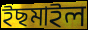
ইছমাইল